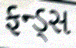
ફન્ડ્સ